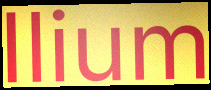
Ilium